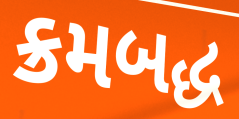
ક્રમબદ્ધ